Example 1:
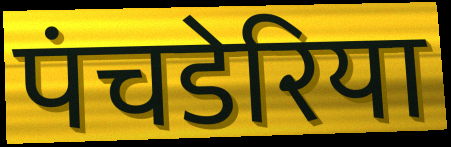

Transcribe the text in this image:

पंचडेरिया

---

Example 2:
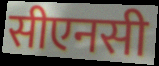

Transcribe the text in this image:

सीएनसी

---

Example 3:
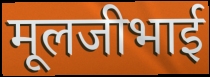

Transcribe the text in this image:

मूलजीभाई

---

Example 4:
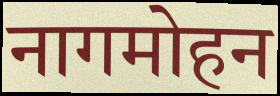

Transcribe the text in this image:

नागमोहन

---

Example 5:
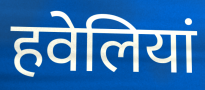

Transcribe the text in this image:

हवेलियां